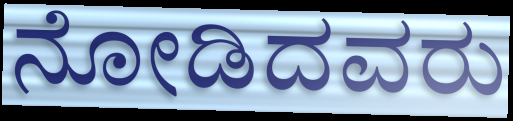
ನೋಡಿದವರು